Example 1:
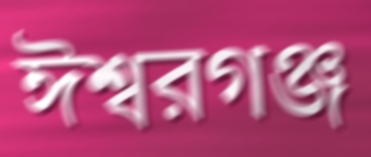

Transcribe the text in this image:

ঈশ্বরগঞ্জ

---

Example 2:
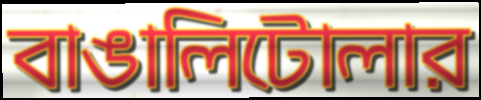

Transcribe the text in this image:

বাঙালিটোলার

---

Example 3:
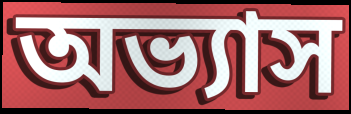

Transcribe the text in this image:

অভ্যাস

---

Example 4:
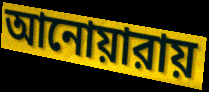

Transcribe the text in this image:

আনোয়ারায়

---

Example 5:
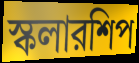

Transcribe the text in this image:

স্কলারশিপ